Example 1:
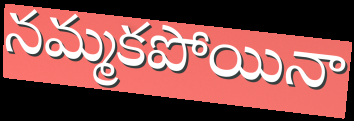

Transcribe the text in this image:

నమ్మకపోయినా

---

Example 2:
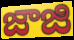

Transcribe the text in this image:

జాజి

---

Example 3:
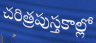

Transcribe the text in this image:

చరిత్రపుస్తకాల్లో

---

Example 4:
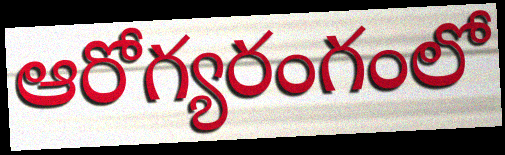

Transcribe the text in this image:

ఆరోగ్యరంగంలో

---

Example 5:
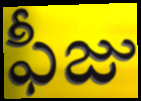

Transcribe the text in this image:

ఫీజు